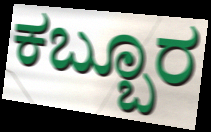
ಕಬ್ಬೂರ